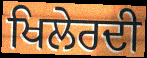
ਖਿਲੇਰਦੀ